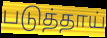
படுத்தாய்